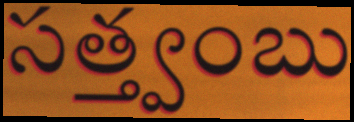
సత్త్వంబు